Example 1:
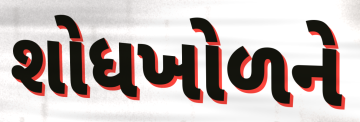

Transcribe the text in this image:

શોધખોળને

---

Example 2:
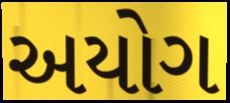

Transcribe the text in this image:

અયોગ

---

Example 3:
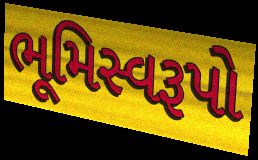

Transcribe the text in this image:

ભૂમિસ્વરૂપો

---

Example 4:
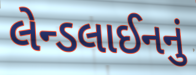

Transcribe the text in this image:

લેન્ડલાઈનનું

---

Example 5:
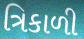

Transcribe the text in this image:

ત્રિકાળી